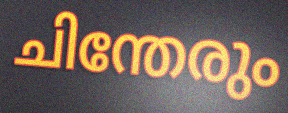
ചിന്തേരും